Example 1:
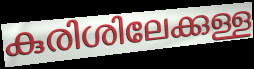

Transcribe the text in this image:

കുരിശിലേക്കുള്ള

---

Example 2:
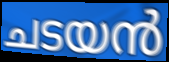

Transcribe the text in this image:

ചടയൻ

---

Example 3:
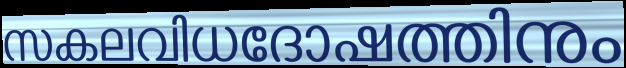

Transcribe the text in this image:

സകലവിധദോഷത്തിനും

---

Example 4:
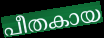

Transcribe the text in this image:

പീതകായ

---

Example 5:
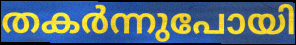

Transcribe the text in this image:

തകർന്നുപോയി